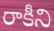
రాకీని